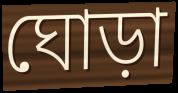
ঘোড়া